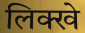
लिक्खे